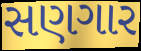
સણગાર